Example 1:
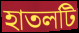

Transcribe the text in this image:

হাতলটি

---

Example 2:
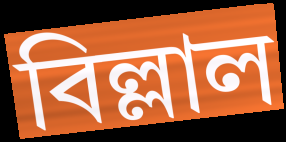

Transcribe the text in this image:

বিল্লাল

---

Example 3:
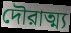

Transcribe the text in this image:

দৌরাত্ম্য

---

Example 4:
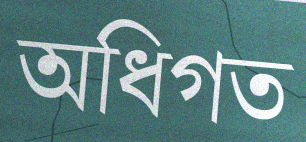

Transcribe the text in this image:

অধিগত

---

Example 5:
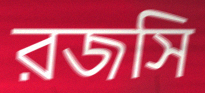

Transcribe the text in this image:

রজসি